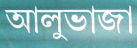
আলুভাজা